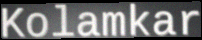
Kolamkar